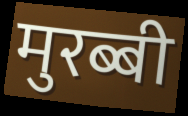
मुरब्बी